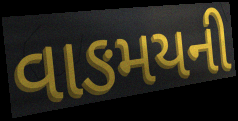
વાઙમયની